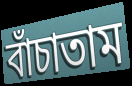
বাঁচাতাম